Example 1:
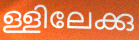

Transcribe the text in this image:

ള്ളിലേക്കു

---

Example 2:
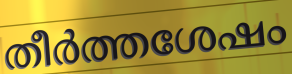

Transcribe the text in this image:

തീർത്തശേഷം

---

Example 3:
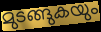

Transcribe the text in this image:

മുടങ്ങുകയും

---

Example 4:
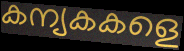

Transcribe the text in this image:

കന്യകകളെ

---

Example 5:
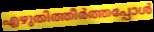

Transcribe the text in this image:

എഴുതിത്തീർത്തപ്പോൾ